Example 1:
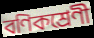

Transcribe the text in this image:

বণিকশ্রেণী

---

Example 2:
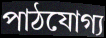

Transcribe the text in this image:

পাঠযোগ্য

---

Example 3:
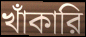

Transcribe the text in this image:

খাঁকারি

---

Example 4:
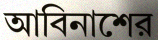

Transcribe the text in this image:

আবিনাশের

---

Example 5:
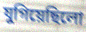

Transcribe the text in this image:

যুগিয়েছিলো